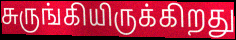
சுருங்கியிருக்கிறது